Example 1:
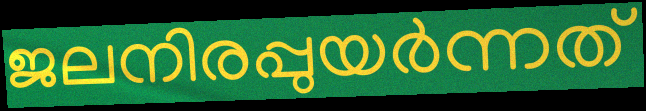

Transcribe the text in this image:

ജലനിരപ്പുയർന്നത്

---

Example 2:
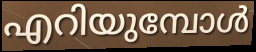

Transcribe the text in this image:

എറിയുമ്പോൾ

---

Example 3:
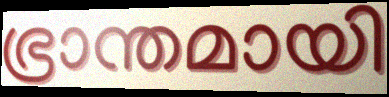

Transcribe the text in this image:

ഭ്രാന്തമായി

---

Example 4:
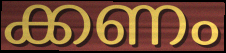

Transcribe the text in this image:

ക്കണം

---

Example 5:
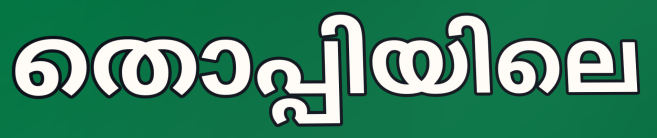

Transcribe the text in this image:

തൊപ്പിയിലെ